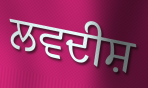
ਲਵਦੀਸ਼